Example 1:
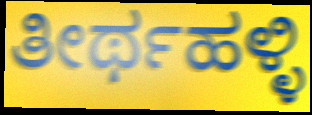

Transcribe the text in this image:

ತೀರ್ಥಹಳ್ಳಿ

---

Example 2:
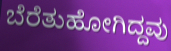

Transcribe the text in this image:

ಬೆರೆತುಹೋಗಿದ್ದವು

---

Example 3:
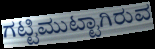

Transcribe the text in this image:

ಗಟ್ಟಿಮುಟ್ಟಾಗಿರುವ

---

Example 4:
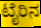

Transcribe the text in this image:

ಟೈರಿನ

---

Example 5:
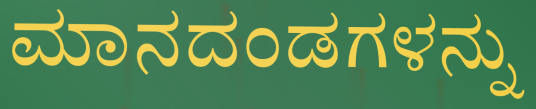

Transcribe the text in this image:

ಮಾನದಂಡಗಳನ್ನು